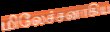
மிலேச்சனாகிய